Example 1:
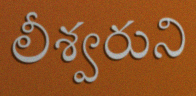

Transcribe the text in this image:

లీశ్వరుని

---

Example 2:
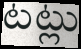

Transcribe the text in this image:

టట్లు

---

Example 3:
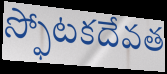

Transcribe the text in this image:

స్ఫోటకదేవత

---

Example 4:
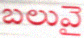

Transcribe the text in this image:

బలువై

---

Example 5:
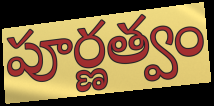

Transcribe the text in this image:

పూర్ణత్వం